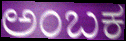
ಅಂಬಕ